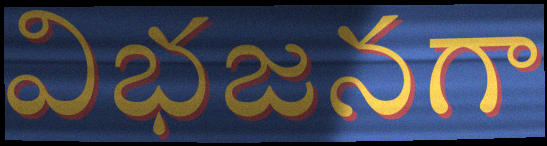
విభజనగా